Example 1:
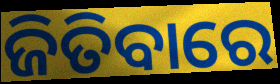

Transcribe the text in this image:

ଜିତିବାରେ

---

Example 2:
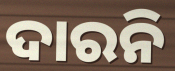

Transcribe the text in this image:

ଦାରନି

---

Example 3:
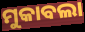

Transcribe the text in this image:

ମୁକାବଲା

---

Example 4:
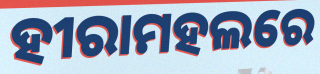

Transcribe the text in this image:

ହୀରାମହଲରେ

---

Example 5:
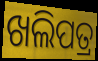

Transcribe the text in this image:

ଖଲିପତ୍ର